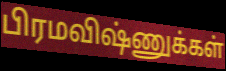
பிரமவிஷ்ணுக்கள்